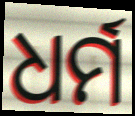
ଧର୍ମ